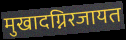
मुखादग्निरजायत